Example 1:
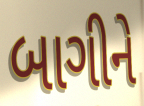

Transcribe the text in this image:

બાગીને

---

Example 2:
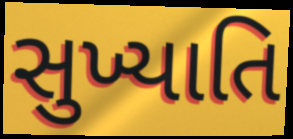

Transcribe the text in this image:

સુખ્યાતિ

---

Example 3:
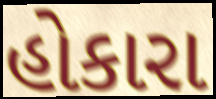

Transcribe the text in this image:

હોકારા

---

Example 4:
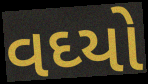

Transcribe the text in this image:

વઘ્યો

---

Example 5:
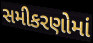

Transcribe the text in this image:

સમીકરણોમાં